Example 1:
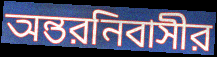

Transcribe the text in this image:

অন্তরনিবাসীর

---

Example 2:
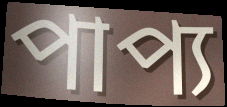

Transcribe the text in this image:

পাপ্য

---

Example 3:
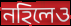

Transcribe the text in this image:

নহিলেও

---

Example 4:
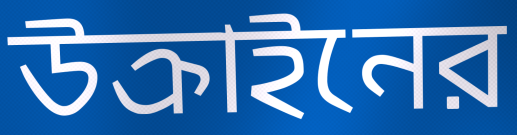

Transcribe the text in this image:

উক্রাইনের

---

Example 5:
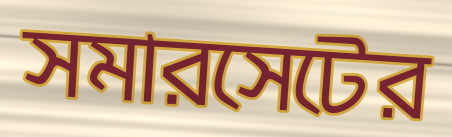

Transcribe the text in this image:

সমারসেটের